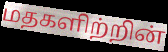
மதகளிற்றின்